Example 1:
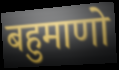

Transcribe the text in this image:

बहुमाणो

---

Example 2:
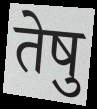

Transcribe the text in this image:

तेषु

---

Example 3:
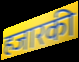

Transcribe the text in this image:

हजारकी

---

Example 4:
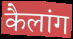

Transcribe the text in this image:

कैलांग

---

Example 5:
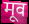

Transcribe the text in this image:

मूव